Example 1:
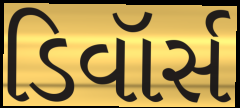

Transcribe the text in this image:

ડિવૉર્સ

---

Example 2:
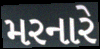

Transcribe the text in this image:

મરનારે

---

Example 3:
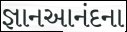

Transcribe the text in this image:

જ્ઞાનઆનંદના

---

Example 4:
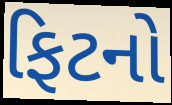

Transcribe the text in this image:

ફિટનો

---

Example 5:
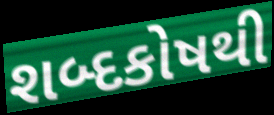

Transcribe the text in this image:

શબ્દકોષથી